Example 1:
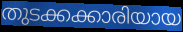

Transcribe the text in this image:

തുടക്കക്കാരിയായ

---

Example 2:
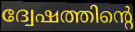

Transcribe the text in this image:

ദ്വേഷത്തിന്റെ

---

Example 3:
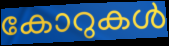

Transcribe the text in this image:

കോറുകൾ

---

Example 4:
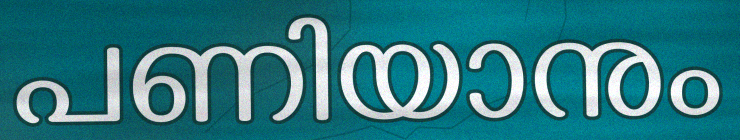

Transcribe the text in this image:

പണിയാനും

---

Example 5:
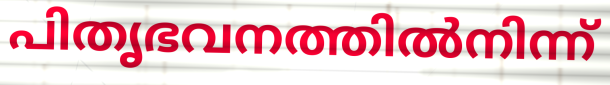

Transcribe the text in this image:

പിതൃഭവനത്തിൽനിന്ന്